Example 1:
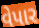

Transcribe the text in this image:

વેપાર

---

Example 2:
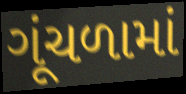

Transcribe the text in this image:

ગૂંચળામાં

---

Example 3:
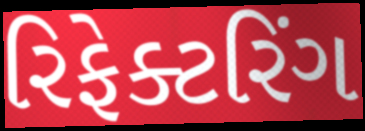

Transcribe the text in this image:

રિફેક્ટરિંગ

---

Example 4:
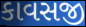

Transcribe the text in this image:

કાવસજી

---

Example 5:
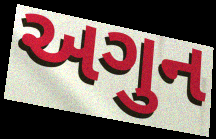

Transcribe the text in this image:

અગુન